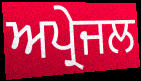
ਅਪ੍ਰੇਜਲ